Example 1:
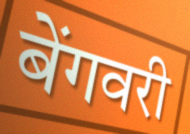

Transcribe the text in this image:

बेंगवरी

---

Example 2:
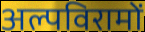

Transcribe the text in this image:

अल्पविरामों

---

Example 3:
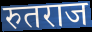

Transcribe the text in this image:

रुतराज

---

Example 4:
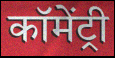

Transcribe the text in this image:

कॉमेंट्री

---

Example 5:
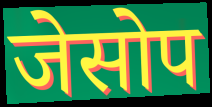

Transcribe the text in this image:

जेसोप